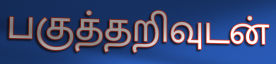
பகுத்தறிவுடன்